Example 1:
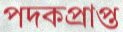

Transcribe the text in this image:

পদকপ্রাপ্ত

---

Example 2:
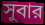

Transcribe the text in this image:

সুবার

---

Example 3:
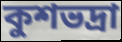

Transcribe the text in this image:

কুশভদ্রা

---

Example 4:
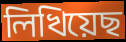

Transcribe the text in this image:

লিখিয়েছ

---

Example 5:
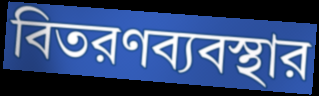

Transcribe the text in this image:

বিতরণব্যবস্থার